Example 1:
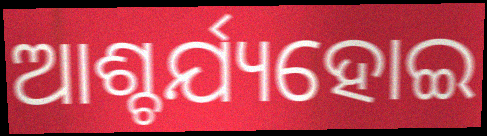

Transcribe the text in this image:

ଆଶ୍ଚର୍ଯ୍ୟହୋଇ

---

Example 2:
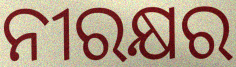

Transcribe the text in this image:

ନୀରକ୍ଷର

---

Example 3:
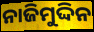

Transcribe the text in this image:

ନାଜିମୁଦ୍ଦିନ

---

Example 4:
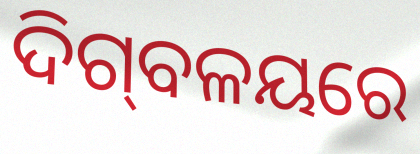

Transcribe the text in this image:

ଦିଗ୍‌ବଳୟରେ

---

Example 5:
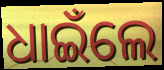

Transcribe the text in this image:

ଧାଇଁଲେ